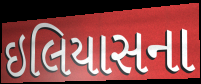
ઇલિયાસના